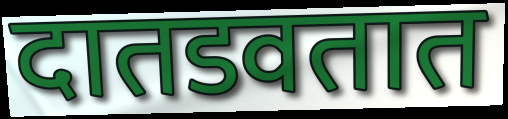
दातडवतात